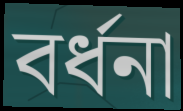
বর্ধনা